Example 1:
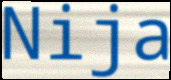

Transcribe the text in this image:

Nija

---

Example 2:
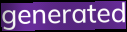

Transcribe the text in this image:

generated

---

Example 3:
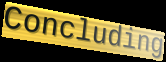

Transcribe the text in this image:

Concluding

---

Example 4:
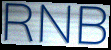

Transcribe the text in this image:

RNB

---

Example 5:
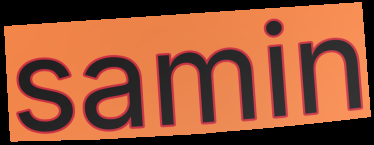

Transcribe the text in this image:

samin